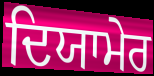
ਦਿਯਾਮੇਰ